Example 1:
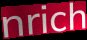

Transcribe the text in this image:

nrich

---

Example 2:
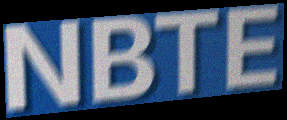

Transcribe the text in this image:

NBTE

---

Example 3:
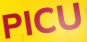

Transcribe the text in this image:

PICU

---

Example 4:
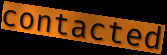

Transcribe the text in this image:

contacted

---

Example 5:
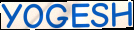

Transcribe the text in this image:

YOGESH